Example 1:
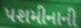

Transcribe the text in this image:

પશમીનાની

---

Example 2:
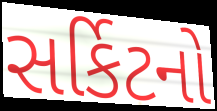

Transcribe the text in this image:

સર્કિટનો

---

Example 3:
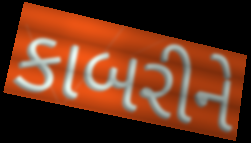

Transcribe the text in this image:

કાબરીને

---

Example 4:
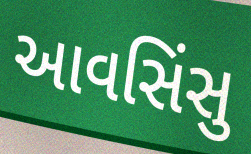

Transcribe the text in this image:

આવસિંસુ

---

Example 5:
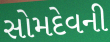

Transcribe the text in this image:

સોમદેવની